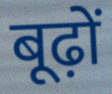
बूढ़ों